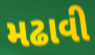
મઢાવી